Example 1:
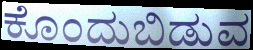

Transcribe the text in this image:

ಕೊಂದುಬಿಡುವ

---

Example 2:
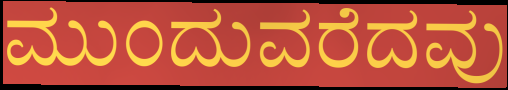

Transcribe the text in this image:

ಮುಂದುವರೆದವು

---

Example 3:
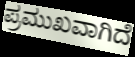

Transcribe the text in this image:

ಪ್ರಮುಖವಾಗಿದೆ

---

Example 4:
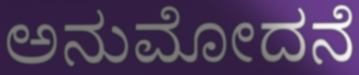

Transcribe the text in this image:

ಅನುಮೋದನೆ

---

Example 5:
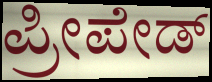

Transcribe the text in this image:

ಪ್ರೀಪೇಡ್